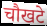
चौखटे